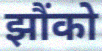
झौंको